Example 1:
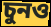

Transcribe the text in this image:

চুনও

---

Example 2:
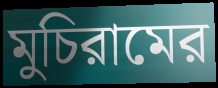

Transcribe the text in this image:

মুচিরামের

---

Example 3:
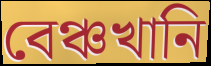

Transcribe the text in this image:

বেঞ্চখানি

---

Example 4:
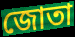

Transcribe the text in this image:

জোতা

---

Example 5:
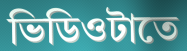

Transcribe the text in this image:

ভিডিওটাতে